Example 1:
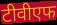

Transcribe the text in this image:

टीवीएफ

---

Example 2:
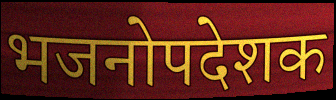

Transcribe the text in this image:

भजनोपदेशक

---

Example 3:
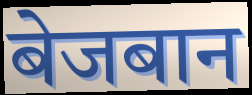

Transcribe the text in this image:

बेजबान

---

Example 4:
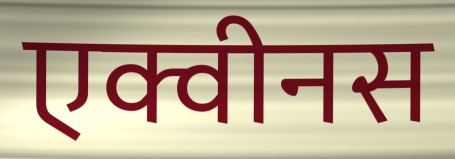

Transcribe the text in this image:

एक्वीनस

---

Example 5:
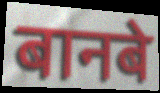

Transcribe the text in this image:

बानबे